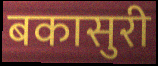
बकासुरी